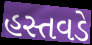
હસ્તવડે